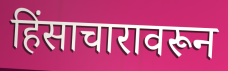
हिंसाचारावरून